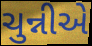
ચુન્નીએ